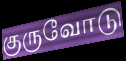
குருவோடு